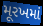
મૂરખમાં